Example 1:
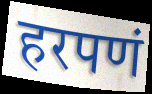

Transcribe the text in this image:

हरपणं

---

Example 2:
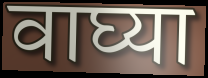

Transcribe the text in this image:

वाघ्या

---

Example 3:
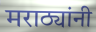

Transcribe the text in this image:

मराठ्यांनी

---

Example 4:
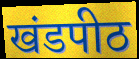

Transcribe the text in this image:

खंडपीठ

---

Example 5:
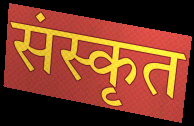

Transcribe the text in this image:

संस्‍कृत